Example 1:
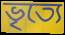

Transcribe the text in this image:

ভৃত্যে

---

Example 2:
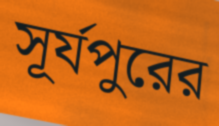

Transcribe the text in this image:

সূর্যপুরের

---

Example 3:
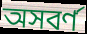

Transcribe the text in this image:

অসবর্ণ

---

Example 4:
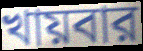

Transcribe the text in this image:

খায়বার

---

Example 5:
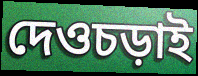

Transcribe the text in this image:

দেওচড়াই